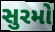
સુરમો